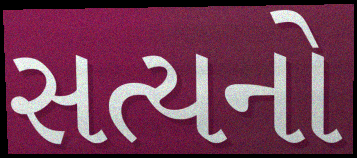
સત્યનો